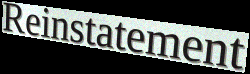
Reinstatement